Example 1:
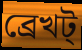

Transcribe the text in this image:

ব্রেখট্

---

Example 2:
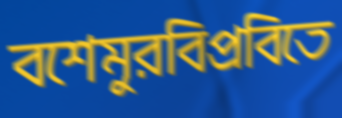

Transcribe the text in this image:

বশেমুরবিপ্রবিতে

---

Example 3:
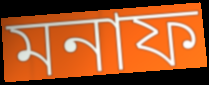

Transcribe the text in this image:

মনাফ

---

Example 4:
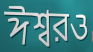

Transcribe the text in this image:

ঈশ্বরও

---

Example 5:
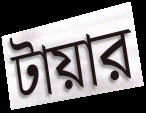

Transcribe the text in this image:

টায়ার